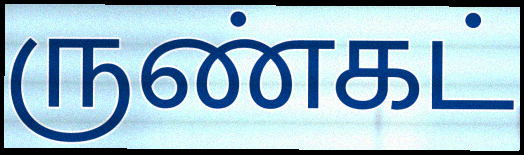
ருண்கட்